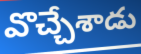
వొచ్చేశాడు